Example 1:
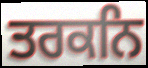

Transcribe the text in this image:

ਤਰਕਨਿ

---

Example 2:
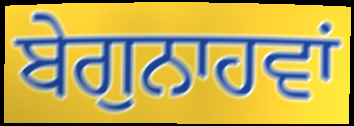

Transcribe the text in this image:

ਬੇਗੁਨਾਹਵਾਂ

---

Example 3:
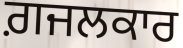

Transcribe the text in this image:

ਗ਼ਜਲਕਾਰ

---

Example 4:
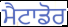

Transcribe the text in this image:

ਮੈਟਾਡੋਰ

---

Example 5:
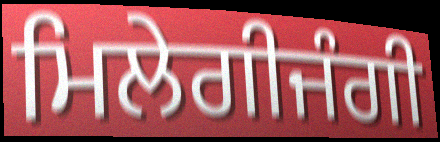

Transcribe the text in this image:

ਮਿਲੇਗੀਜੰਗੀ